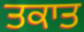
ਤਕਾਤ